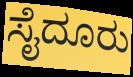
ಸೈದೂರು